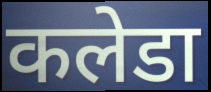
कलेडा